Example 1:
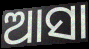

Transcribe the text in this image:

ଆସା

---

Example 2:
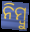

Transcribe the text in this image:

ନିମ୍ବୁ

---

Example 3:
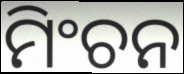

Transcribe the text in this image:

ମିଂଚନ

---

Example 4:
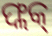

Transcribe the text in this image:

ଫ୍ଲକ୍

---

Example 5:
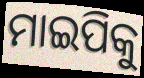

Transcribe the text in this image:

ମାଇପିକୁ